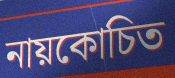
নায়কোচিত